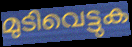
മുടിവെട്ടുക